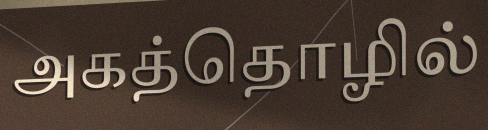
அகத்தொழில்